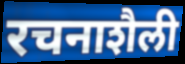
रचनाशैली